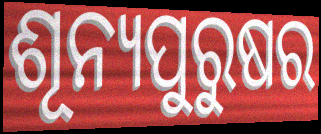
ଶୂନ୍ୟପୁରୁଷର